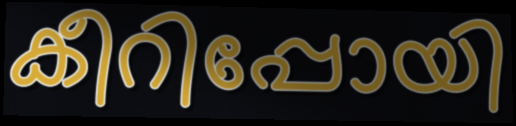
കീറിപ്പോയി